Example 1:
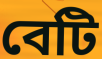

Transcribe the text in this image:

বেটি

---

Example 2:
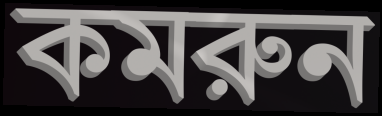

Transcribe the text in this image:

কমরুন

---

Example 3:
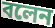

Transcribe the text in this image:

বলেন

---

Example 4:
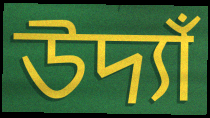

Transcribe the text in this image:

উদ্যাঁ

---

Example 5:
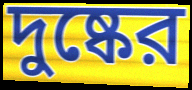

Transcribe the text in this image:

দুষ্কের